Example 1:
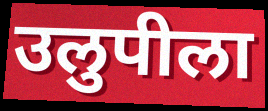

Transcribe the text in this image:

उलुपीला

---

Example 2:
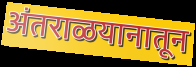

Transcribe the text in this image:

अंतराळयानातून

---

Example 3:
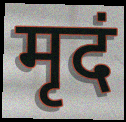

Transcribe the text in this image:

मृदं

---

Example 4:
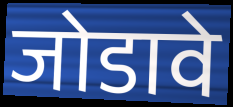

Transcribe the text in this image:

जोडावे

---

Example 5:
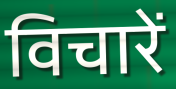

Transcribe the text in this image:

विचारें